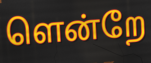
ளென்றே